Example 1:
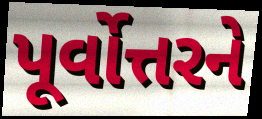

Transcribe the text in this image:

પૂર્વોત્તરને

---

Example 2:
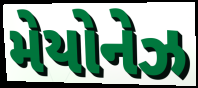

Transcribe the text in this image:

મેયોનેઝ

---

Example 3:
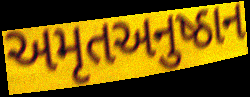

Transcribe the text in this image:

અમૃતઅનુષ્ઠાન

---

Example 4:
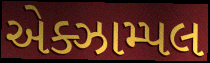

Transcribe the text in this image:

એક્ઝામ્પલ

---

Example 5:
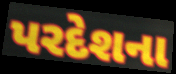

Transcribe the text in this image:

પરદેશના